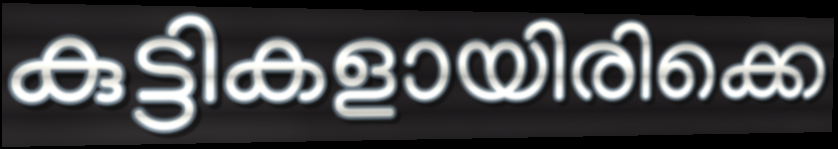
കുട്ടികളായിരിക്കെ